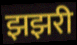
झझरी